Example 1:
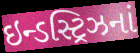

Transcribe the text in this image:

ઇન્ડસ્ટ્રિઝનાં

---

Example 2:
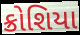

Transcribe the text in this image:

ક્રોશિયા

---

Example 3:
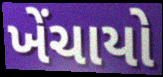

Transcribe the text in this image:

ખેંચાયો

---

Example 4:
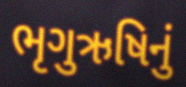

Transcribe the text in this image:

ભૃગુઋષિનું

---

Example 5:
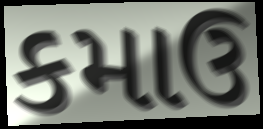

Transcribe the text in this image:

કમાઉ